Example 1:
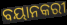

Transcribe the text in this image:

ବୟାନକରୀ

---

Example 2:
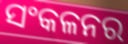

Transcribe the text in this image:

ସଂକଳନର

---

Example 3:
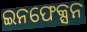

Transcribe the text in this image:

ଇନଫେକ୍ସନ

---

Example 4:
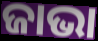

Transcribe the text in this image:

ଜାଭା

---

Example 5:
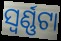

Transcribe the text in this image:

ସ୍ୱର୍ଣ୍ଣଟା